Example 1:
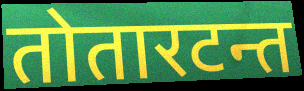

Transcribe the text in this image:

तोतारटन्त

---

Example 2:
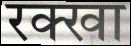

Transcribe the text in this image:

रक्‍खा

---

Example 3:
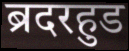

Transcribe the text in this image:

ब्रदरहुड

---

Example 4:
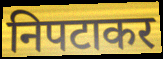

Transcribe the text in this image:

निपटाकर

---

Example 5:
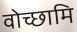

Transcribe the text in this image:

वोच्छामि